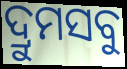
ଦ୍ରୁମସବୁ